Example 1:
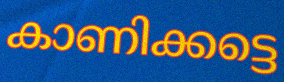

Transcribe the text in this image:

കാണിക്കട്ടെ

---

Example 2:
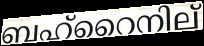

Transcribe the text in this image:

ബഹ്റൈനില്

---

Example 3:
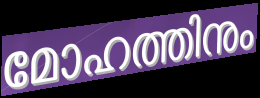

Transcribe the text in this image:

മോഹത്തിനും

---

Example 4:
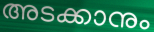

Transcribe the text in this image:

അടക്കാനും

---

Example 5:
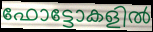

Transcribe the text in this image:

ഫോട്ടോകളിൽ